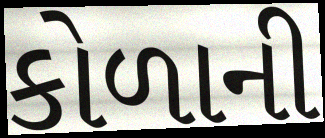
કોળાની